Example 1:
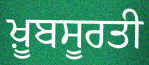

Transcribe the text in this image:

ਖ਼ੂਬਸੂਰਤੀ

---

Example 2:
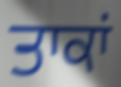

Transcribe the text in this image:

ਤਾਕਾਂ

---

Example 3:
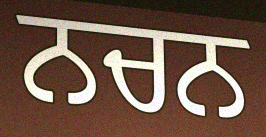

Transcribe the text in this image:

ਨਚਨ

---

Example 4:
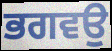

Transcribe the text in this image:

ਭਗਵਉ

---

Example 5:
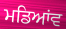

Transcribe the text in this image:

ਮਡਿਆਂਵ